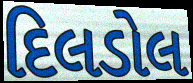
દિલડોલ